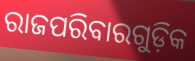
ରାଜପରିବାରଗୁଡ଼ିକ